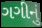
ગગીનું